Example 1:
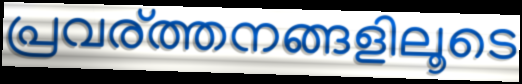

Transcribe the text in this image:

പ്രവര്ത്തനങ്ങളിലൂടെ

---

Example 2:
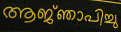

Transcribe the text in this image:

ആജ്‌ഞാപിച്ചു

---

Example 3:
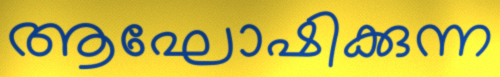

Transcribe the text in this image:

ആഘോഷിക്കുന്ന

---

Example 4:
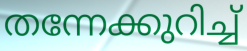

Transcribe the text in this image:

തന്നേക്കുറിച്ച്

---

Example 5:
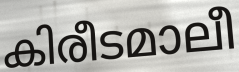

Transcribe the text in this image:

കിരീടമാലീ